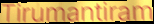
Tirumantiram